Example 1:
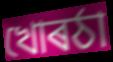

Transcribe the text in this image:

খোৰঠা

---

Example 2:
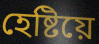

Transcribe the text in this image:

হেষ্টিয়ে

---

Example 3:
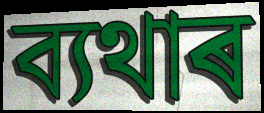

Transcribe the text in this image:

ব্যথাৰ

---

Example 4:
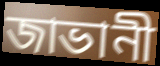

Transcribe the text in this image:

জাভানী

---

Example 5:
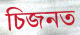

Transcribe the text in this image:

চিজনত